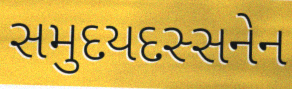
સમુદયદસ્સનેન